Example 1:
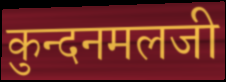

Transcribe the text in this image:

कुन्दनमलजी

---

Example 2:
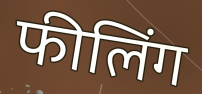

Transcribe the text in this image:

फीलिंग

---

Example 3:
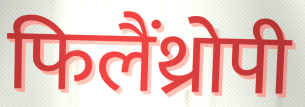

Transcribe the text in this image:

फिलैंथ्रोपी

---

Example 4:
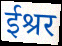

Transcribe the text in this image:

ईश्रर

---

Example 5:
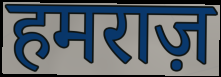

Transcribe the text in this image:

हमराज़